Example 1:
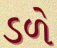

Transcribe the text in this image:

ડળે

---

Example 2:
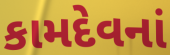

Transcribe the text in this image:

કામદેવનાં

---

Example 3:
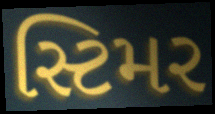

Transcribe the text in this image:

સ્ટિમર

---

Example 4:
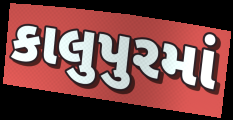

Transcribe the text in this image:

કાલુપુરમાં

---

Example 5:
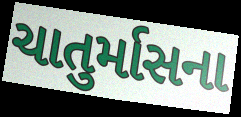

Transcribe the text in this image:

ચાતુર્માસના